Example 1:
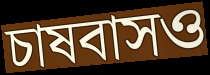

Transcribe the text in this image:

চাষবাসও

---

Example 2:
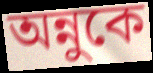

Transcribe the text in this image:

অন্নুকে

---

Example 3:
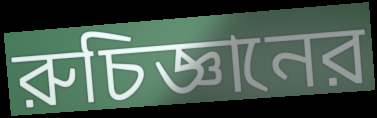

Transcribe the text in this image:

রুচিজ্ঞানের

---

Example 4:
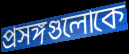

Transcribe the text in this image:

প্রসঙ্গগুলোকে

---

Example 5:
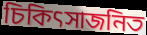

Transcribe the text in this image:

চিকিৎসাজনিত